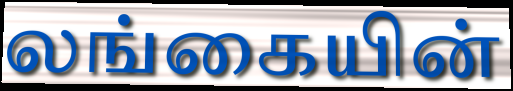
லங்கையின்